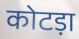
कोटड़ा